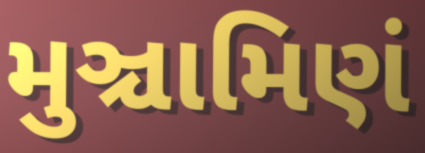
મુઞ્ચામિણં